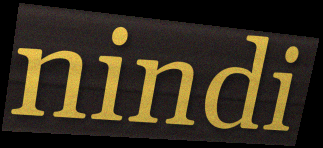
nindi